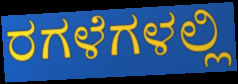
ರಗಳೆಗಳಲ್ಲಿ